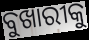
ବୁଖାରୀକୁ